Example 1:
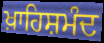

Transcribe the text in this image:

ਖ਼ਾਹਿਸ਼ਮੰਦ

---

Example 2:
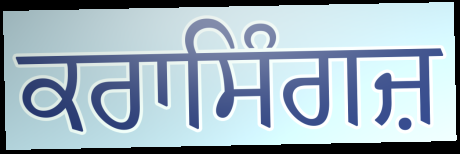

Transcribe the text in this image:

ਕਰਾਸਿੰਗਜ਼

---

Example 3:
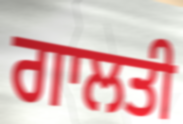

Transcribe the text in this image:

ਗਾਲਤੀ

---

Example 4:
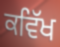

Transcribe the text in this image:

ਕਵਿੱਖ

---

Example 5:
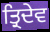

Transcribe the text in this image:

ਤ੍ਰਿਦੇਵ